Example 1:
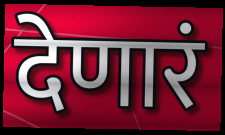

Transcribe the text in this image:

देणारं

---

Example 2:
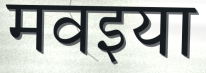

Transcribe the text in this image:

मवइया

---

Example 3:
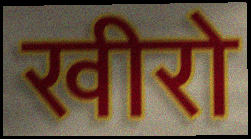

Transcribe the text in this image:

खीरो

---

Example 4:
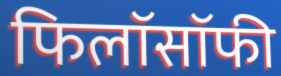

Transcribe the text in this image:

फिलॉसॉफी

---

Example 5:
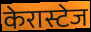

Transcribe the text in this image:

केरास्टेज